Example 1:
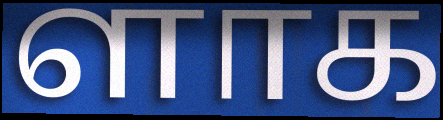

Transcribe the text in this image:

ளாக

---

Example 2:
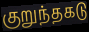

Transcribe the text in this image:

குறுந்தகடு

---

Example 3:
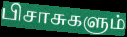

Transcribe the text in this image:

பிசாசுகளும்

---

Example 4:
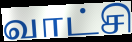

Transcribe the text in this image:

வாட்சி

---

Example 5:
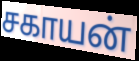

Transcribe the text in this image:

சகாயன்